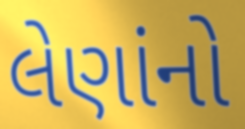
લેણાંનો